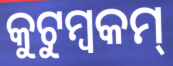
କୁଟୁମ୍ବକମ୍